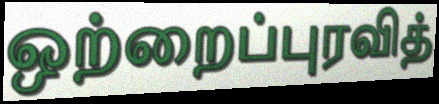
ஒற்றைப்புரவித்